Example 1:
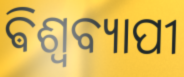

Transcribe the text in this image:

ଵିଶ୍ୱବ୍ୟାପୀ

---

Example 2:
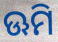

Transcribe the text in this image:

ଊମି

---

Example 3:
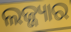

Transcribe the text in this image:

ଲଜ୍ଜ୍ୟାର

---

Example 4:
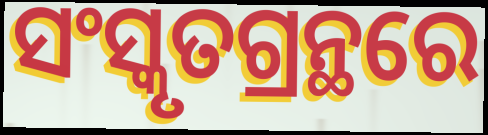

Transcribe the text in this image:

ସଂସ୍କୃତଗ୍ରନ୍ଥରେ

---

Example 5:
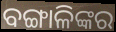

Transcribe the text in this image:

ବଙ୍ଗାଳିଙ୍କର